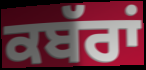
ਕਬੱਰਾਂ